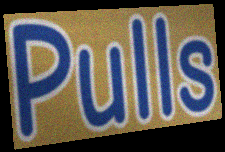
Pulls